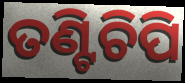
ତଣ୍ଟିଚିପି